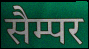
सैम्पर